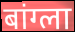
बांग्ला